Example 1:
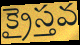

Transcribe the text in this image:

క్రైస్తవ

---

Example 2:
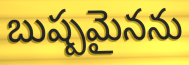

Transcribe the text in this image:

బుష్పమైనను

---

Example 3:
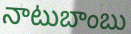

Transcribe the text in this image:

నాటుబాంబు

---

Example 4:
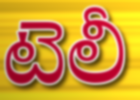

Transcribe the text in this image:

టెలీ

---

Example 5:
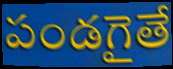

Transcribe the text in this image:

పండగైతే